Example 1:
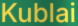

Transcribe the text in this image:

Kublai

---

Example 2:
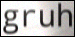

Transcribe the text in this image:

gruh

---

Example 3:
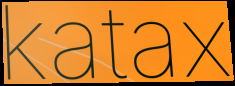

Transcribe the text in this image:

katax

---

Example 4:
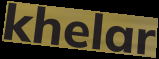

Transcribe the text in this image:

khelar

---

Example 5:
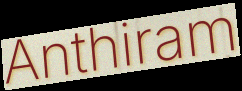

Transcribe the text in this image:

Anthiram